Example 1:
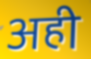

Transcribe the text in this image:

अही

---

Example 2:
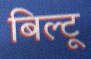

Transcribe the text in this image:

बिल्टू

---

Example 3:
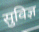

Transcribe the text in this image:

सुविज्ञ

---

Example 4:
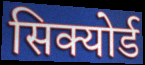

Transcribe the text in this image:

सिक्योर्ड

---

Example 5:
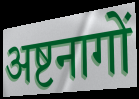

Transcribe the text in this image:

अष्टनागों